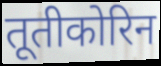
तूतीकोरिन